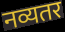
नव्यतर